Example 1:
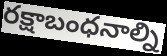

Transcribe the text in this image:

రక్షాబంధనాల్ని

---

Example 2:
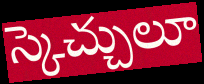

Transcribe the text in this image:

స్కెచ్చులూ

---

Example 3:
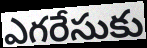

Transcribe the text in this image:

ఎగరేసుకు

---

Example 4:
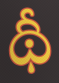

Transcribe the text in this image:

థీ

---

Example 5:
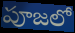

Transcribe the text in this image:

పూజలో